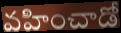
వహించాడో